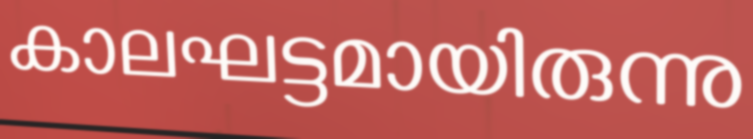
കാലഘട്ടമായിരുന്നു